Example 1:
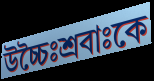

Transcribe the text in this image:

উচ্চৈঃশ্রবাঃকে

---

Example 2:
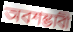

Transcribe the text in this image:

অবশম্ভাবী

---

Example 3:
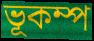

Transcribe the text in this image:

ভূকম্প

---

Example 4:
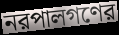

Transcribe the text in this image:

নরপালগণের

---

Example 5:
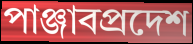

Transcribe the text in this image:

পাঞ্জাবপ্রদেশ